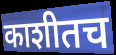
काशीतच